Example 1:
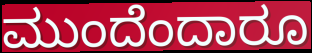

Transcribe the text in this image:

ಮುಂದೆಂದಾರೂ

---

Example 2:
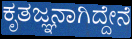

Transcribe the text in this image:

ಕೃತಜ್ಞನಾಗಿದ್ದೇನೆ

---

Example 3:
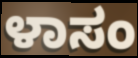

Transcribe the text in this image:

ಳಾಸಂ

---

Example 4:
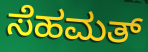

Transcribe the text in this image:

ಸೆಹಮತ್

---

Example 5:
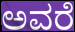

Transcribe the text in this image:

ಅವರೆ